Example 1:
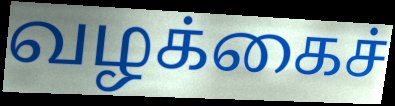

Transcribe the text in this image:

வழக்கைச்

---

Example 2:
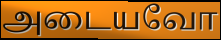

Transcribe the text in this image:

அடையவோ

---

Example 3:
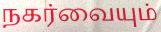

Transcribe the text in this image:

நகர்வையும்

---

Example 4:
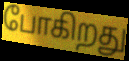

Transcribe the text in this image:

போகிறது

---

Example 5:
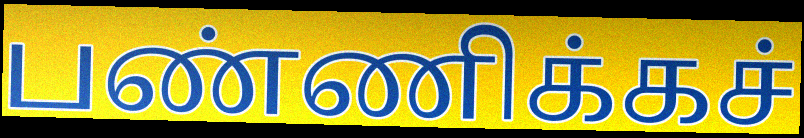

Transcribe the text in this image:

பண்ணிக்கச்